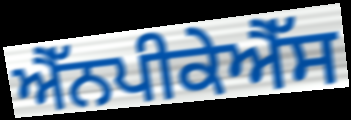
ਐੱਨਪੀਕੇਐੱਸ